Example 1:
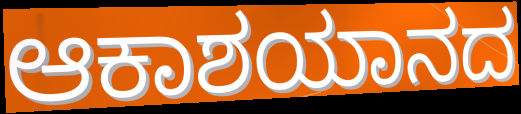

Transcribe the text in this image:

ಆಕಾಶಯಾನದ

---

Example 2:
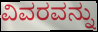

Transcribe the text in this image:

ವಿವರವನ್ನು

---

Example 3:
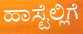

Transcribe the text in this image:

ಹಾಸ್ಟೆಲ್ಲಿಗೆ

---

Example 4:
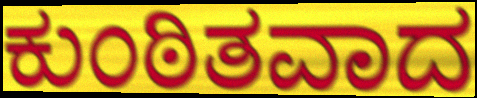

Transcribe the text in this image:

ಕುಂಠಿತವಾದ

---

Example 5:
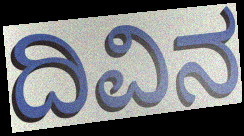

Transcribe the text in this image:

ದಿವಿನ